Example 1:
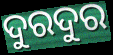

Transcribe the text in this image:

ଦୁରଦୁର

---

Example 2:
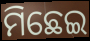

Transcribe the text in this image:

ମିଛେଇ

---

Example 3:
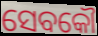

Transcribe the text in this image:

ସେବକୌ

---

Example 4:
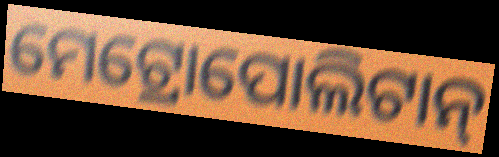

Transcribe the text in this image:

ମେଟ୍ରୋପୋଲିଟାନ୍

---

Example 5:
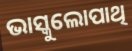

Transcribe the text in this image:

ଭାସ୍କୁଲୋପାଥି